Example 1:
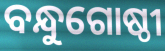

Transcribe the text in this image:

ବନ୍ଧୁଗୋଷ୍ଠୀ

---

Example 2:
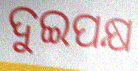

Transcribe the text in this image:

ଦୁଇପକ୍ଷ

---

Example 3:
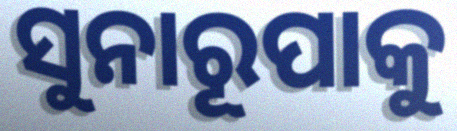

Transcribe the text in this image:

ସୁନାରୂପାକୁ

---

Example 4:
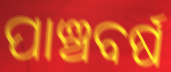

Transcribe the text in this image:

ପାଞ୍ଚବର୍ଷ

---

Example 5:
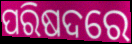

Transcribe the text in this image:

ପରିଷଦରେ